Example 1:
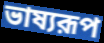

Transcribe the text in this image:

ভাষ্যরূপ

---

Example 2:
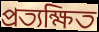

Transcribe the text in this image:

প্রত্যক্ষিত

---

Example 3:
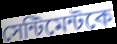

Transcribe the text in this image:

সেন্টিমেন্টকে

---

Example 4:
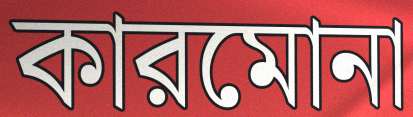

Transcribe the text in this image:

কারমোনা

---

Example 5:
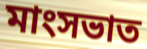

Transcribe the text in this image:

মাংসভাত